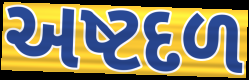
અષ્ટદળ